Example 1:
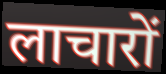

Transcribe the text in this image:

लाचारों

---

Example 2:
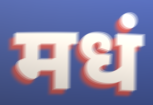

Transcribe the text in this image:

मधं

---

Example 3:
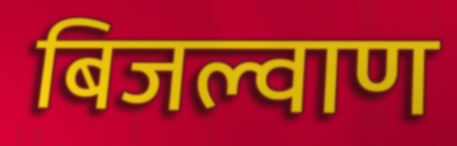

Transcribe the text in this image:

बिजल्वाण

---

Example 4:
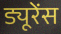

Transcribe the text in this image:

ड्यूरेंस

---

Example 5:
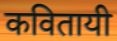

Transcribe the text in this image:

कवितायी